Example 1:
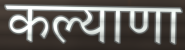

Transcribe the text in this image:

कल्याणा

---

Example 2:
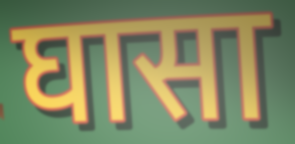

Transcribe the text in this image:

घासा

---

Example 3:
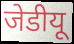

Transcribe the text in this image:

जेडीयू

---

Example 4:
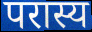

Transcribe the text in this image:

परास्य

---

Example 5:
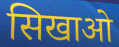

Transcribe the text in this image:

सिखाओ